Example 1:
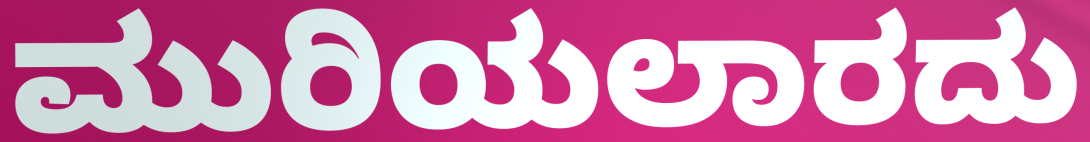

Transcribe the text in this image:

ಮುರಿಯಲಾರದು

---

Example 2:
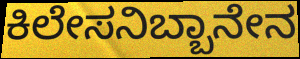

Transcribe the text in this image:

ಕಿಲೇಸನಿಬ್ಬಾನೇನ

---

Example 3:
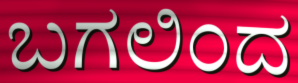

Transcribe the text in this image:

ಬಗಲಿಂದ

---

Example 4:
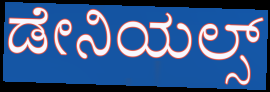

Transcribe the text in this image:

ಡೇನಿಯಲ್ಸ್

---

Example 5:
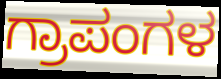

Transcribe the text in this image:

ಗ್ರಾಪಂಗಳ